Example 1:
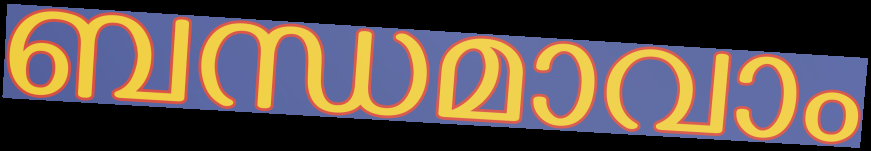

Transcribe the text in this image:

ബന്ധമാവാം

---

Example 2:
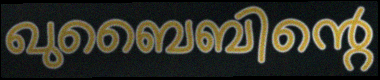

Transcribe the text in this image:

ഖുബൈബിന്റെ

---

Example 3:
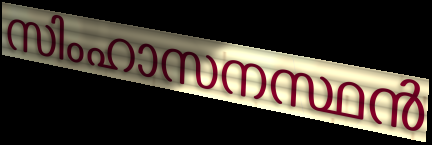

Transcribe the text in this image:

സിംഹാസനസ്ഥൻ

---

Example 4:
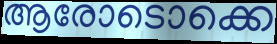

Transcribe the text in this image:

ആരോടൊക്കെ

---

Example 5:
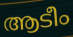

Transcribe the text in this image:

ആടീം